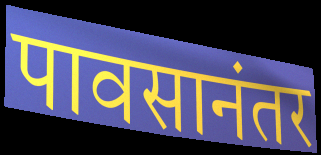
पावसानंतर